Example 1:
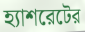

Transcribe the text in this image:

হ্যাশরেটের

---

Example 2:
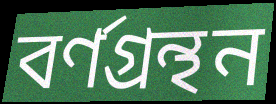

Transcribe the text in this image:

বর্ণগ্রন্থন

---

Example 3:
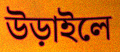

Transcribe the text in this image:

উড়াইলে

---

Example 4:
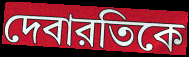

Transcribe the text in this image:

দেবারতিকে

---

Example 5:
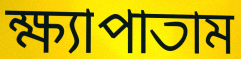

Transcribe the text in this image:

ক্ষ্যাপাতাম